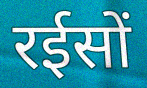
रईसों